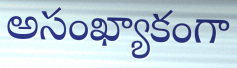
అసంఖ్యాకంగా